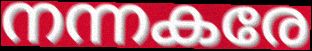
നന്നകരേ